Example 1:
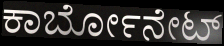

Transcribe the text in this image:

ಕಾರ್ಬೋನೇಟ್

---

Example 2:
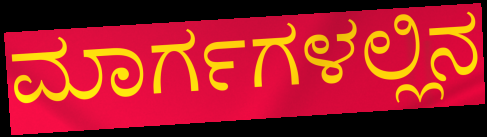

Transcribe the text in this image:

ಮಾರ್ಗಗಳಲ್ಲಿನ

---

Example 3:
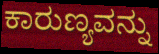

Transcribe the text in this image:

ಕಾರುಣ್ಯವನ್ನು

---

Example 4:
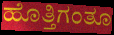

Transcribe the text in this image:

ಹೊತ್ತಿಗಂತೂ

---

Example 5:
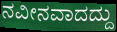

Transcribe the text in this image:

ನವೀನವಾದದ್ದು